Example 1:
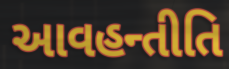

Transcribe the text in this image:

આવહન્તીતિ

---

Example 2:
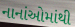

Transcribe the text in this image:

નાનાંઓમાંથી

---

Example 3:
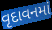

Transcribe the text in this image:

વૃદાવનમાં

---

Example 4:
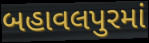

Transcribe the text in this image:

બહાવલપુરમાં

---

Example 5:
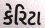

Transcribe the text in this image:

કેરિટા